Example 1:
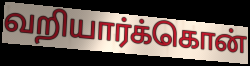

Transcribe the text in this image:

வறியார்க்கொன்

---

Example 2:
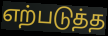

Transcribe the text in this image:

எற்படுத்த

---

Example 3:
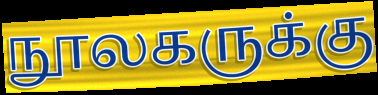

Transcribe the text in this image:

நூலகருக்கு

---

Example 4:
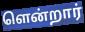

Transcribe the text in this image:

ளென்றார்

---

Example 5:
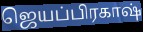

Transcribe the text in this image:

ஜெயப்பிரகாஷ்